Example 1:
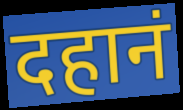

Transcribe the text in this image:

दहानं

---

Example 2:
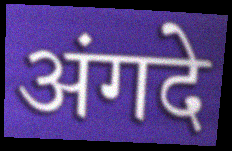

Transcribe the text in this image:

अंगदे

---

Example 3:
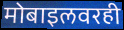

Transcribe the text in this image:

मोबाइलवरही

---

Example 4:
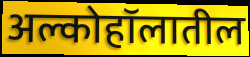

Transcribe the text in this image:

अल्कोहॉलातील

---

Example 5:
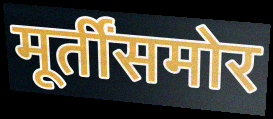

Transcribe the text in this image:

मूर्तींसमोर